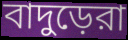
বাদুড়েরা